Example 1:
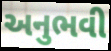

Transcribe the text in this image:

અનુભવી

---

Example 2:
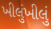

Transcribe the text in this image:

ખીલુંખીલું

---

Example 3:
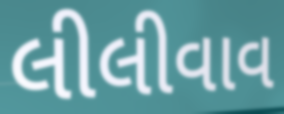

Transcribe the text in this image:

લીલીવાવ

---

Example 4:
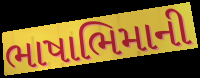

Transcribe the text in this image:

ભાષાભિમાની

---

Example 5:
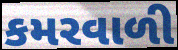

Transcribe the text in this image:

કમરવાળી